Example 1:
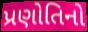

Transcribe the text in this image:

પ્રણોતિનો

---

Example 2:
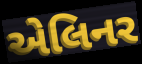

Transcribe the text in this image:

એલિનર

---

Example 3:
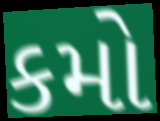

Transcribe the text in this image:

કમો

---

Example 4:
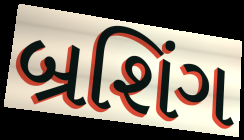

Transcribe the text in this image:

બ્રશિંગ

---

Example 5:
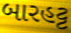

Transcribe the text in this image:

બારહટ્ટ